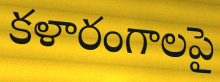
కళారంగాలపై